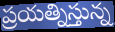
ప్రయత్నిస్తున్న